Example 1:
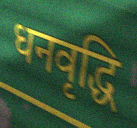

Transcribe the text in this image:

धनवृद्धि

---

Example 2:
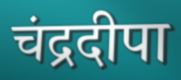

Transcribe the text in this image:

चंद्रदीपा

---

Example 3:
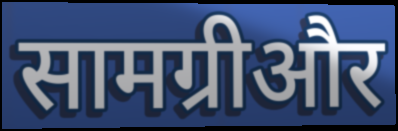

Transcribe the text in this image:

सामग्रीऔर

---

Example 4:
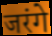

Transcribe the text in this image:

जरंगे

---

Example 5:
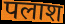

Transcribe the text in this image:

पलाश